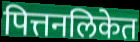
पित्तनलिकेत